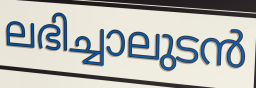
ലഭിച്ചാലുടൻ